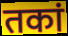
तकां